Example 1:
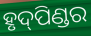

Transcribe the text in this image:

ହୃଦ୍‌ପିଣ୍ଡର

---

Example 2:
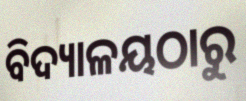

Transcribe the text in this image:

ବିଦ୍ୟାଳୟଠାରୁ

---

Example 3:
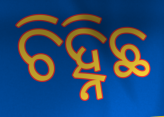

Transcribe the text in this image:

ଚିହ୍ନିଛ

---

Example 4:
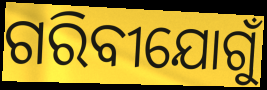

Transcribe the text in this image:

ଗରିବୀଯୋଗୁଁ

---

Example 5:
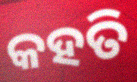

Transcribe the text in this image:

କହତି